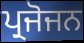
ਪ੍ਰਜੋਜਨ